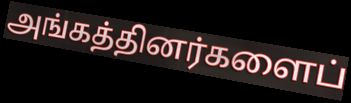
அங்கத்தினர்களைப்